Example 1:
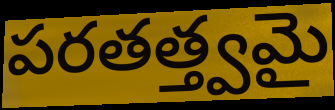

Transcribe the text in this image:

పరతత్త్వమై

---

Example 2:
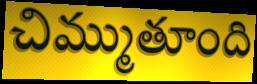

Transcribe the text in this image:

చిమ్ముతూంది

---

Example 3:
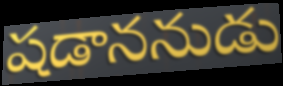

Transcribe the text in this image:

షడాననుడు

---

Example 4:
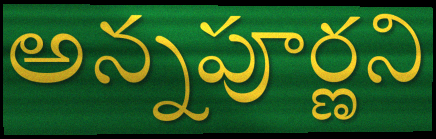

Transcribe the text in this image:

అన్నపూర్ణని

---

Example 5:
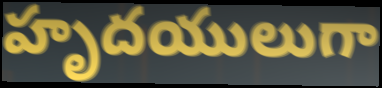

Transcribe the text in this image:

హృదయులుగా